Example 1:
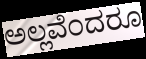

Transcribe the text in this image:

ಅಲ್ಲವೆಂದರೂ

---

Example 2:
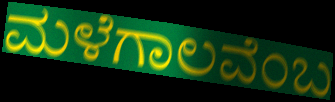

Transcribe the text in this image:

ಮಳೆಗಾಲವೆಂಬ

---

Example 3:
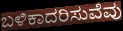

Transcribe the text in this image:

ಬಳಿಕಾದರಿಸುವೆವು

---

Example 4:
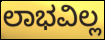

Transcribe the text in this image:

ಲಾಭವಿಲ್ಲ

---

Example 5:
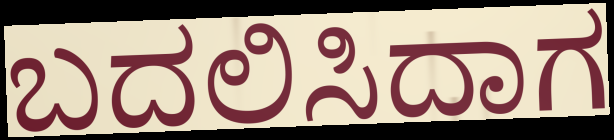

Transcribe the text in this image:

ಬದಲಿಸಿದಾಗ